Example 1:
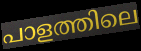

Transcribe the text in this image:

പാളത്തിലെ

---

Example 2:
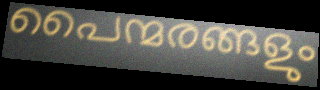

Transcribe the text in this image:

പൈന്മരങ്ങളും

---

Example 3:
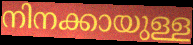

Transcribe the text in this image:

നിനക്കായുള്ള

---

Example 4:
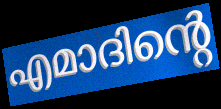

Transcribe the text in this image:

എമാദിന്റെ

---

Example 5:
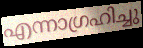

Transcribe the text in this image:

എന്നാഗ്രഹിച്ചു